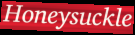
Honeysuckle